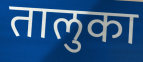
तालुका